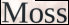
Moss